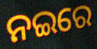
ନଇରେ